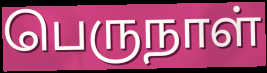
பெருநாள்